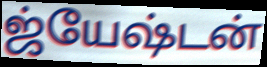
ஜ்யேஷ்டன்